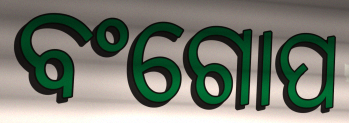
ବଂଗୋପ